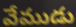
వేముడు